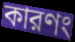
কারণং